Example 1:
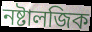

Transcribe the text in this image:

নষ্টালজিক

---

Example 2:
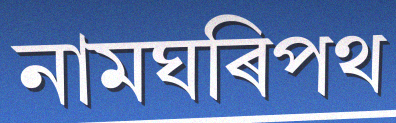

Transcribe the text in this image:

নামঘৰিপথ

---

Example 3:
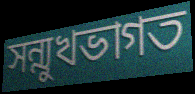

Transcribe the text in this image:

সন্মুখভাগত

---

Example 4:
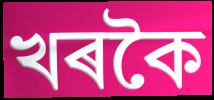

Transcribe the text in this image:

খৰকৈ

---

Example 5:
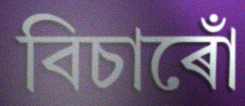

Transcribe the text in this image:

বিচাৰোঁ